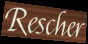
Rescher